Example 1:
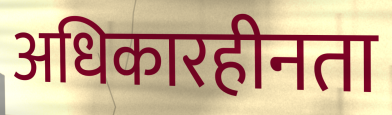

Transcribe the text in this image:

अधिकारहीनता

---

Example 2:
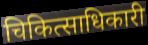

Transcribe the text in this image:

चिकित्साधिकारी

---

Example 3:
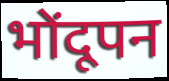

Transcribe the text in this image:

भोंदूपन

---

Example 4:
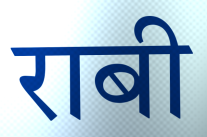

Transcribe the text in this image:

राबी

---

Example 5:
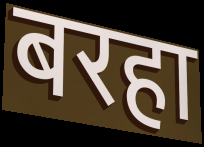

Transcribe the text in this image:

बरहा